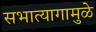
सभात्यागामुळे